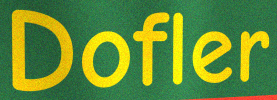
Dofler